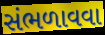
સંભળાવવા